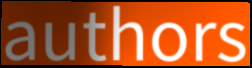
authors